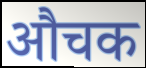
औचक